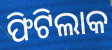
ଫିଟିଲାକ